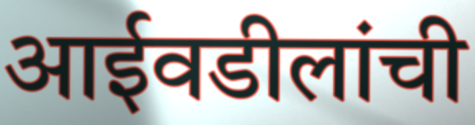
आईवडीलांची